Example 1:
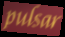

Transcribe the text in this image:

pulsar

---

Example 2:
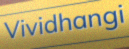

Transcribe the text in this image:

Vividhangi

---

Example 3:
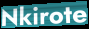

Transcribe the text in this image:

Nkirote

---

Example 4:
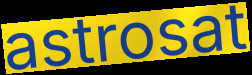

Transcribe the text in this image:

astrosat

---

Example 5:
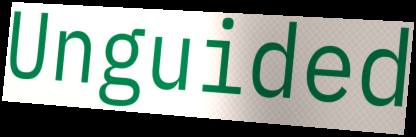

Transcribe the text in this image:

Unguided